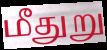
மீதுறு